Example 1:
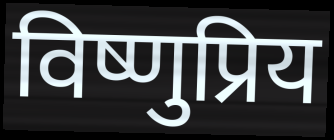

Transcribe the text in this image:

विष्णुप्रिय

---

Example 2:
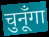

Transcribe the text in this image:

चुनूँगा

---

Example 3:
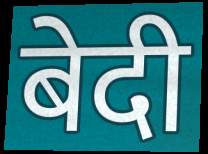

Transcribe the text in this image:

बेदी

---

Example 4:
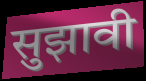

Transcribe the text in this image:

सुझावी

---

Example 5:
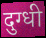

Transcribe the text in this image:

दुग्धी